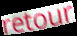
retour